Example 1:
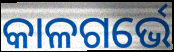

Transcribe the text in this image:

କାଳଗର୍ଭେ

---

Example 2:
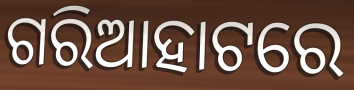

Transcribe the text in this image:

ଗରିଆହାଟରେ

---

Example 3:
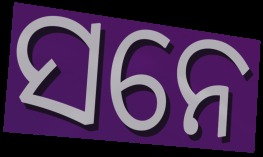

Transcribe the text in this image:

ସନେ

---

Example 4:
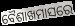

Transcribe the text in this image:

ବୈଶାଖମାସରେ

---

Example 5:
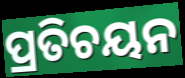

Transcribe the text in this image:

ପ୍ରତିଚୟନ